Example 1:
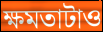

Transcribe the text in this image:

ক্ষমতাটাও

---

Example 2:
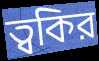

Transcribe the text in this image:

ত্বকির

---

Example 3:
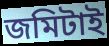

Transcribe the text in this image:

জমিটাই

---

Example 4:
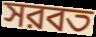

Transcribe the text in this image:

সরবত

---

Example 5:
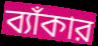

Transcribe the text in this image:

ব্যাঁকার